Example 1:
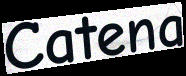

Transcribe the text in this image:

Catena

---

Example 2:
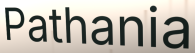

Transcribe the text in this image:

Pathania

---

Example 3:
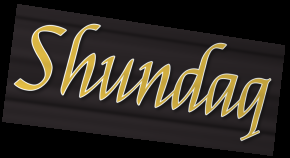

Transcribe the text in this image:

Shundaq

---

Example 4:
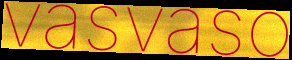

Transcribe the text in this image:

vasvaso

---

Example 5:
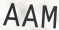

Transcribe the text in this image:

AAM